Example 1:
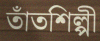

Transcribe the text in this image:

তাঁতশিল্পী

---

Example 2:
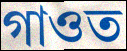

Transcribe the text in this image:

গাওত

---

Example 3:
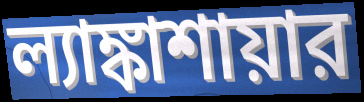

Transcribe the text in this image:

ল্যাঙ্কাশায়ার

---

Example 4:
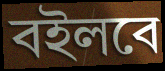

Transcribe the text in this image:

বইলবে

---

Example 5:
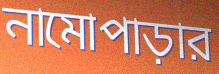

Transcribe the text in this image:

নামোপাড়ার